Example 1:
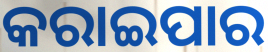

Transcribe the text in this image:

କରାଇପାର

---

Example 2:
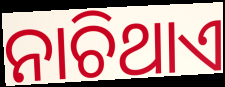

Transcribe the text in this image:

ନାଚିଥାଏ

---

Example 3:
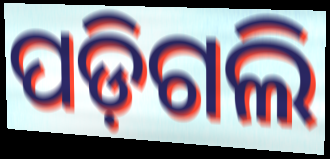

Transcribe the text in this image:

ପଡ଼ିଗଲି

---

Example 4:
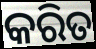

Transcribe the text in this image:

କରିତ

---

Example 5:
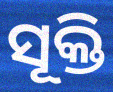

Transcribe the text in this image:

ସୂକ୍ତି